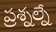
ప్రశ్నల్నే